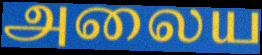
அலைய